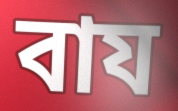
বায